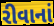
રીવાનાં